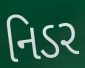
નિડર